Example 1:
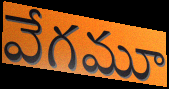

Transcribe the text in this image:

వేగమూ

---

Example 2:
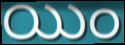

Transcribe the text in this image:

యిం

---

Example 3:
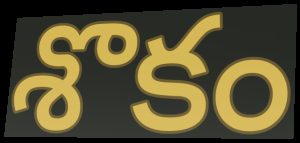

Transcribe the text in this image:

శొకం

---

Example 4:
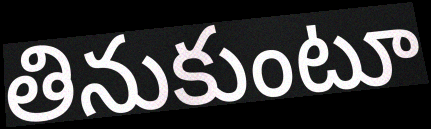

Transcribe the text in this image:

తినుకుంటూ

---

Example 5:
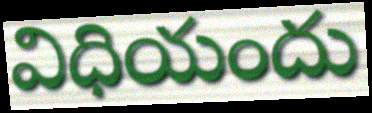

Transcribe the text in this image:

విధియందు